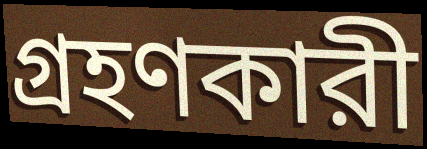
গ্রহণকারী